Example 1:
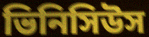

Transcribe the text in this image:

ভিনিসিউস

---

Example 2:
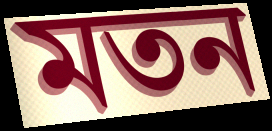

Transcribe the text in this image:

মতন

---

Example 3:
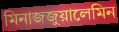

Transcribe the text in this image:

মিনাজজুয়ালেমিন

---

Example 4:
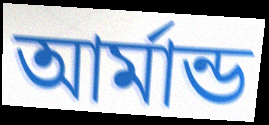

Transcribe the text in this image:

আর্মান্ড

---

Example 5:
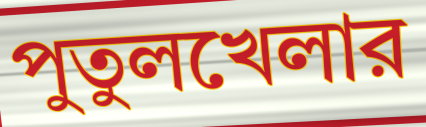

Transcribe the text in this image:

পুতুলখেলার